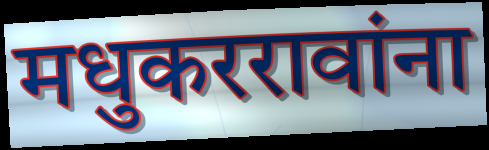
मधुकररावांना